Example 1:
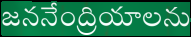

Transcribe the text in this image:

జననేంద్రియాలను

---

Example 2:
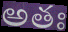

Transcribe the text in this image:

అతః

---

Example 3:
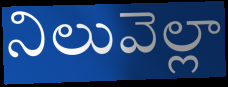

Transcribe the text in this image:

నిలువెల్లా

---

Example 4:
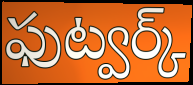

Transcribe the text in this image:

ఫుట్వర్క్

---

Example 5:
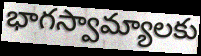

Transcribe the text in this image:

భాగస్వామ్యాలకు